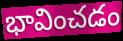
భావించడం